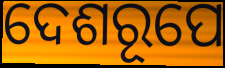
ଦେଶରୂପେ